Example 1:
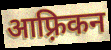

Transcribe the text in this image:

आफ़्रिकन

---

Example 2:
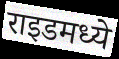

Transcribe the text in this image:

राइडमध्ये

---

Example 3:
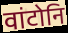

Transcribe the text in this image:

वांटोनि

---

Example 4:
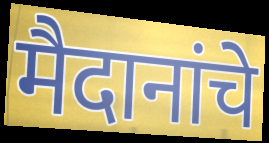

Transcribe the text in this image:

मैदानांचे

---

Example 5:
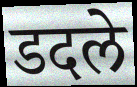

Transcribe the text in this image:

डदले